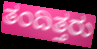
ತಂದಿತ್ತರು